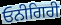
ਓਨੀਗਿਰੀ